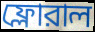
ফ্লোরাল